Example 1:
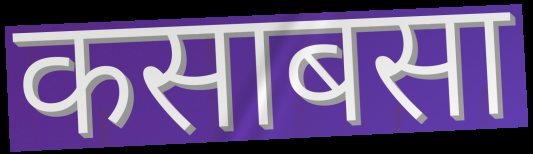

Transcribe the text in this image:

कसाबसा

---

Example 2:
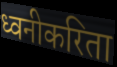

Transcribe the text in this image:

ध्वनीकरिता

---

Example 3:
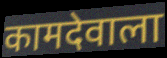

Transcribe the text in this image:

कामदेवाला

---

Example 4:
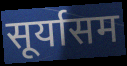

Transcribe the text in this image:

सूर्यासम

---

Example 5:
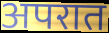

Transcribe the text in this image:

अपरात